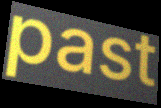
past